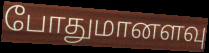
போதுமானளவு